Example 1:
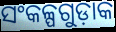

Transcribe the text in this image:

ସଂକଳ୍ପଗୁଡ଼ାକ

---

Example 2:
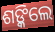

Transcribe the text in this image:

ଶଙ୍କିଲେ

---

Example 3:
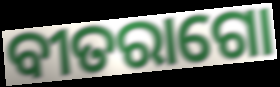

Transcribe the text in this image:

ବୀତରାଗୋ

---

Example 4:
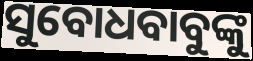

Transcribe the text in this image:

ସୁବୋଧବାବୁଙ୍କୁ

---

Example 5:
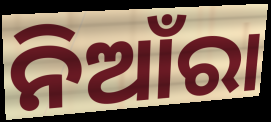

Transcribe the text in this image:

ନିଆଁରା